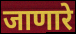
जाणारे